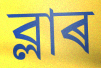
ব্লাৰ